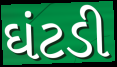
ઘંટડી